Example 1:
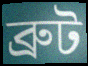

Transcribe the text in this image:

ব্রুট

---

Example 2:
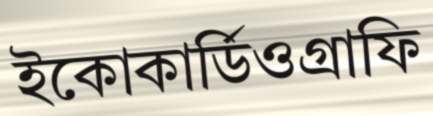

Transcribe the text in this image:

ইকোকার্ডিওগ্রাফি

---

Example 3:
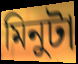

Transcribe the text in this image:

মিনুটা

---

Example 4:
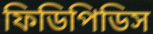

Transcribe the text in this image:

ফিডিপিডিস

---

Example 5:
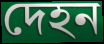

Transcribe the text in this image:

দেহন